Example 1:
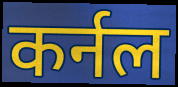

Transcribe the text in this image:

कर्नल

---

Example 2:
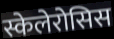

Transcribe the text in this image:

स्केलेरोसिस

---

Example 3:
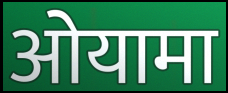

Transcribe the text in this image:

ओयामा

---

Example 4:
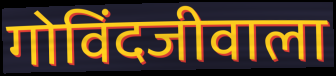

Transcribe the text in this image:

गोविंदजीवाला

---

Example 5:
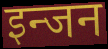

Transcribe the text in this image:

इन्जन